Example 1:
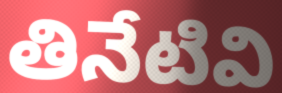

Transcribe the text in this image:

తినేటివి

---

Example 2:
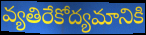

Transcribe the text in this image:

వ్యతిరేకోద్యమానికి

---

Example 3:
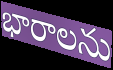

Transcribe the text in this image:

భారాలను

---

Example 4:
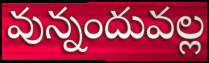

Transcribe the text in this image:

వున్నందువల్ల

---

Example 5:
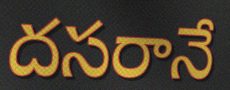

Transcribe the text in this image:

దసరానే